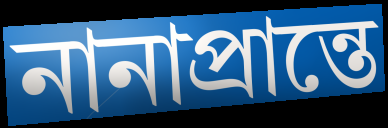
নানাপ্রান্তে